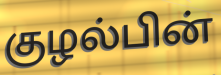
குழல்பின்